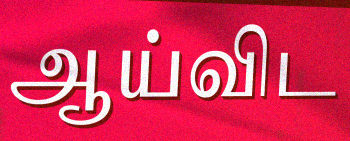
ஆய்விட